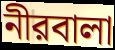
নীরবালা